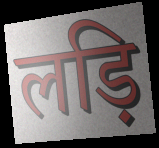
लड़ि